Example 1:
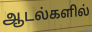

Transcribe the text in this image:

ஆடல்களில்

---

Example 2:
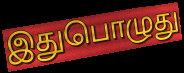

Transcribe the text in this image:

இதுபொழுது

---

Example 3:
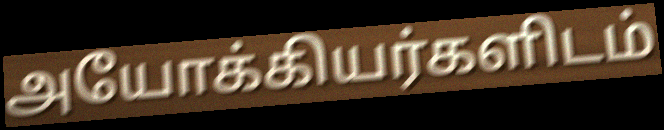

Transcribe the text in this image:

அயோக்கியர்களிடம்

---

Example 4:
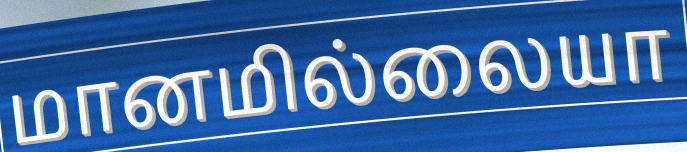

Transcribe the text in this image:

மானமில்லையா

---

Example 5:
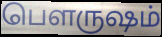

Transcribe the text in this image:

பௌருஷம்